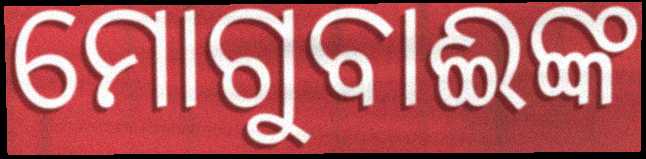
ମୋଗୁବାଈଙ୍କ